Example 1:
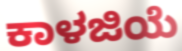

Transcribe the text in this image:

ಕಾಳಜಿಯೆ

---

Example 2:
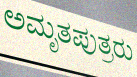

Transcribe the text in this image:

ಅಮೃತಪುತ್ರರು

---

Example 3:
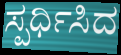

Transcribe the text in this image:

ಸ್ಪರ್ಧಿಸಿದ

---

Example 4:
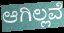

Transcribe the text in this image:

ಆಗಿಲ್ಲವೆ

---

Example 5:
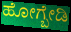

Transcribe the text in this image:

ಹೋಗ್ಬೇಡಿ